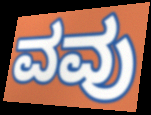
ವವು